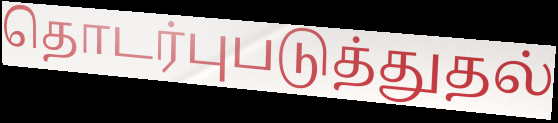
தொடர்புபடுத்துதல்